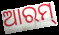
ଆରମ୍